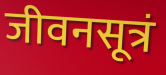
जीवनसूत्रं